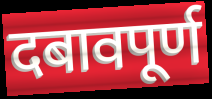
दबावपूर्ण